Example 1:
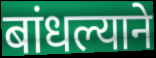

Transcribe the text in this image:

बांधल्याने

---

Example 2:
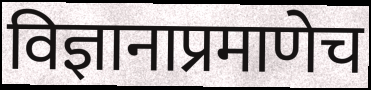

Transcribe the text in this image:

विज्ञानाप्रमाणेच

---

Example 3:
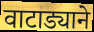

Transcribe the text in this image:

वाटाड्याने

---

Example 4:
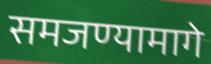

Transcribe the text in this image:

समजण्यामागे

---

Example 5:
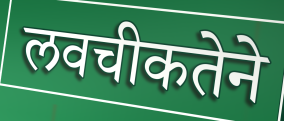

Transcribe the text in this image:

लवचीकतेने